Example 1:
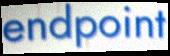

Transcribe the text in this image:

endpoint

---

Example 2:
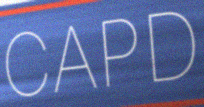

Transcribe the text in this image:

CAPD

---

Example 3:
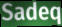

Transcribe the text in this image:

Sadeq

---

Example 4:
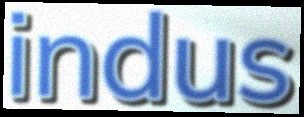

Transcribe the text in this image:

indus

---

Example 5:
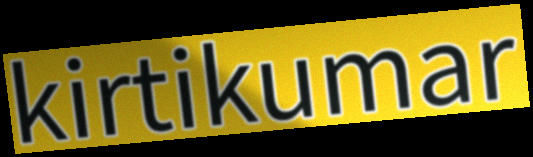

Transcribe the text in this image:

kirtikumar